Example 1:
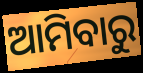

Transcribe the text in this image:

ଆମିବାରୁ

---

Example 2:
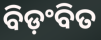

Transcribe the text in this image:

ବିଡ଼ଂବିତ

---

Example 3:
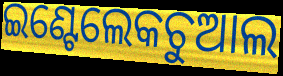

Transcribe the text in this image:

ଇଣ୍ଟେଲେକଚୁଆଲ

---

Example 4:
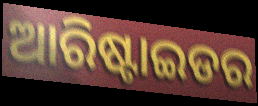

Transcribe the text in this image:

ଆରିଷ୍ଟାଇଡର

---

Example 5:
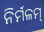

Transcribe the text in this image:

ନିର୍ମଳମ୍